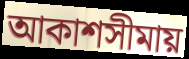
আকাশসীমায়